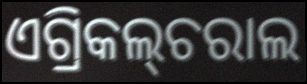
ଏଗ୍ରିକଲ୍‌ଚରାଲ